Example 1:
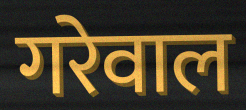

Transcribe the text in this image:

गरेवाल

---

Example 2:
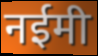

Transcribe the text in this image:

नईमी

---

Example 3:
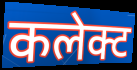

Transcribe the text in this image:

कलेक्ट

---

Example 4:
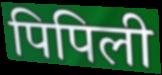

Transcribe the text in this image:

पिपिली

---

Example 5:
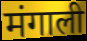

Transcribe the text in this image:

मंगाली